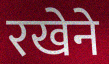
रखेने